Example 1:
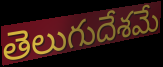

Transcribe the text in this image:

తెలుగుదేశమే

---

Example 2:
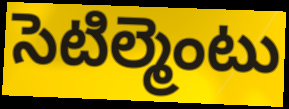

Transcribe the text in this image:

సెటిల్మెంటు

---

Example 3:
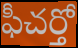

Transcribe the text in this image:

ఫీచర్తో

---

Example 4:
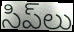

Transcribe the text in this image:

సిప్‌లు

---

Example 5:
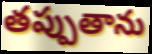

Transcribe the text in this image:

తప్పుతాను